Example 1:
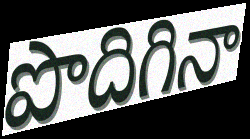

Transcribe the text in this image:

పొదిగినా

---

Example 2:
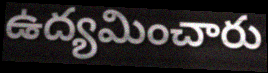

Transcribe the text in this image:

ఉద్యమించారు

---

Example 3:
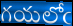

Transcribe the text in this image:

గయలోఁ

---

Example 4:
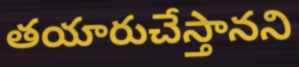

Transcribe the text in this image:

తయారుచేస్తానని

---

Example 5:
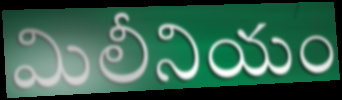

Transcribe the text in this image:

మిలీనియం